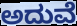
ಅದುವೆ